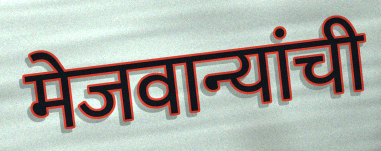
मेजवान्यांची